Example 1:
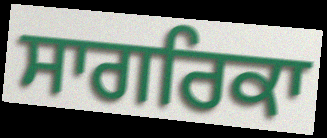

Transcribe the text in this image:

ਸਾਗਰਿਕਾ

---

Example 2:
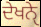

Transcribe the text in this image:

ਦੇਖਨੑੇ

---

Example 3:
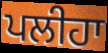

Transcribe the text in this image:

ਪਲੀਹਾ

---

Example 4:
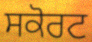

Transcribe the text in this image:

ਸਕੋਰਟ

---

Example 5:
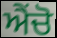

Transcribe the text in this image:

ਐਂਚੋ